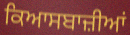
ਕਿਆਸਬਾਜ਼ੀਆਂ